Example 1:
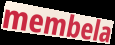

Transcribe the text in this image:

membela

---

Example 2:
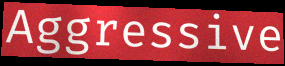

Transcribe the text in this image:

Aggressive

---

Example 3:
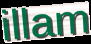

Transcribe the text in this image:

illam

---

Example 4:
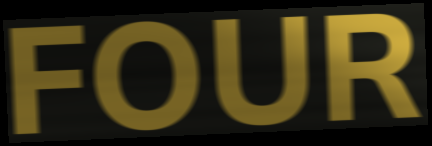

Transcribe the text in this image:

FOUR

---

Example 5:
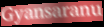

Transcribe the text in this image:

Gyansaranu